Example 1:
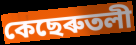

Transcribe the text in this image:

কেছেৰুতলী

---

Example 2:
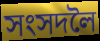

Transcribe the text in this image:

সংসদলৈ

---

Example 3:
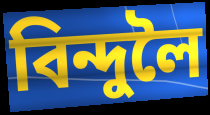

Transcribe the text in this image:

বিন্দুলৈ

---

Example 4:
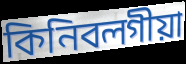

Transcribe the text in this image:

কিনিবলগীয়া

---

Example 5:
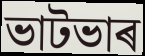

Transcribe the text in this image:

ভাটভাৰ